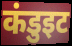
कंडुइट